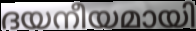
ദയനീയമായി